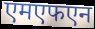
एमएफएन